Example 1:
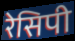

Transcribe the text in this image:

रेसिपी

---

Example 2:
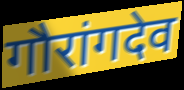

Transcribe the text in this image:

गौरांगदेव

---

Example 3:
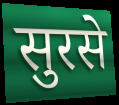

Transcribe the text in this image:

सुरसे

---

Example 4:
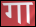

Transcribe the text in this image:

गा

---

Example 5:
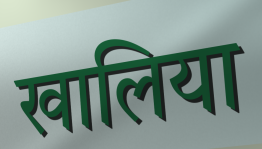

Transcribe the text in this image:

खालिया